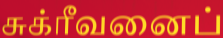
சுக்ரீவனைப்